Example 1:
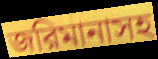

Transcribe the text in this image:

জরিমানাসহ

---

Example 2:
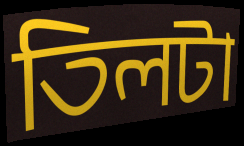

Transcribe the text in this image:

তিলটা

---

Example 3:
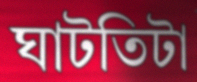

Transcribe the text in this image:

ঘাটতিটা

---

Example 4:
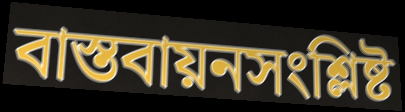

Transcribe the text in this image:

বাস্তবায়নসংশ্লিষ্ট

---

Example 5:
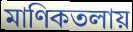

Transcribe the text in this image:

মাণিকতলায়